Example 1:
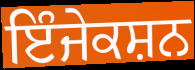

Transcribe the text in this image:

ਇੰਜੇਕਸ਼ਨ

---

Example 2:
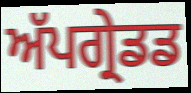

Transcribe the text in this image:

ਅੱਪਗ੍ਰੇਡਡ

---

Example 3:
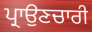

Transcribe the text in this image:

ਪ੍ਰਾਉਣਚਾਰੀ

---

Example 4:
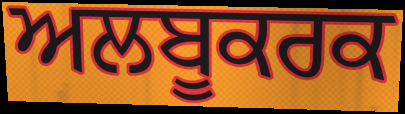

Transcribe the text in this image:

ਅਲਬੂਕਰਕ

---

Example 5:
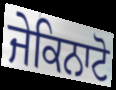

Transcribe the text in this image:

ਜੇਕਿਨਾਟੋ